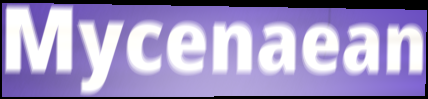
Mycenaean